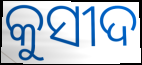
କୁସୀଦ